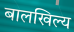
बालखिल्य